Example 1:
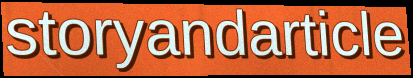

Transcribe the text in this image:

storyandarticle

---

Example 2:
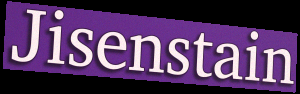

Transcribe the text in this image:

Jisenstain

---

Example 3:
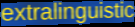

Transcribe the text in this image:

extralinguistic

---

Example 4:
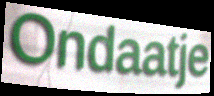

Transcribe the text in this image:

Ondaatje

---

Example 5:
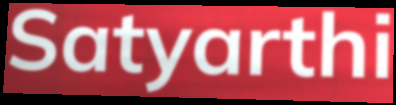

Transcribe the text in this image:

Satyarthi